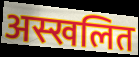
अस्खलित